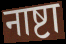
नाष्टा